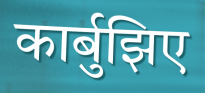
कार्बुझिए